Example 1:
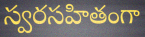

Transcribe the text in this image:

స్వరసహితంగా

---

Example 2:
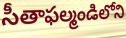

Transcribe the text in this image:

సీతాఫల్మండిలోని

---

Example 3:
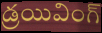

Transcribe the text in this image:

డ్రయివింగ్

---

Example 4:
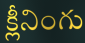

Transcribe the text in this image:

క్లీనింగు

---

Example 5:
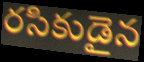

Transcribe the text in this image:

రసికుడైన